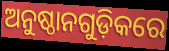
ଅନୁଷ୍ଠାନଗୁଡ଼ିକରେ